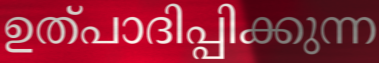
ഉത്പാദിപ്പിക്കുന്ന